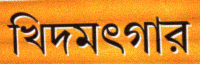
খিদমৎগার